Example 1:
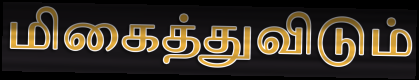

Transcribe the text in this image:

மிகைத்துவிடும்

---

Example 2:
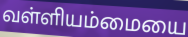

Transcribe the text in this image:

வள்ளியம்மையை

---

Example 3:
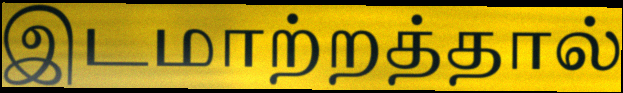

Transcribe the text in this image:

இடமாற்றத்தால்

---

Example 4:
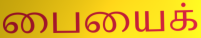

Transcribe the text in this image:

பையைக்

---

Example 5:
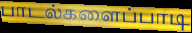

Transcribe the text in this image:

பாடல்களைப்பாடி